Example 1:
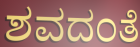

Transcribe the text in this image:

ಶವದಂತೆ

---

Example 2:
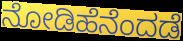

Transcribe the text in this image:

ನೋಡಿಹೆನೆಂದಡೆ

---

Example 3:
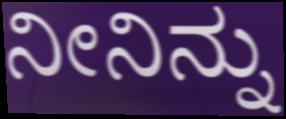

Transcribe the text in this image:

ನೀನಿನ್ನು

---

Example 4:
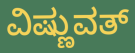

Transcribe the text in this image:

ವಿಷ್ಣುವತ್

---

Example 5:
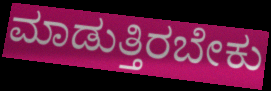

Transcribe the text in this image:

ಮಾಡುತ್ತಿರಬೇಕು